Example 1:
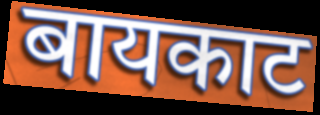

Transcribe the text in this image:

बायकाट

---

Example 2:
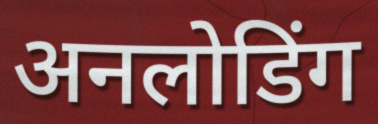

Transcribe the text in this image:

अनलोडिंग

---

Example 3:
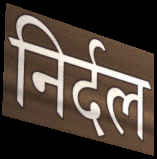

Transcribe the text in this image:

निर्दल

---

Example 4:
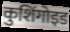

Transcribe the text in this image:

कुशिंगोइड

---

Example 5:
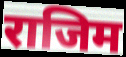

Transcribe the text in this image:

राजिम